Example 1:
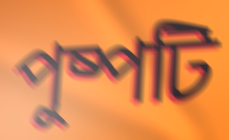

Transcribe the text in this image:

পুষ্পটি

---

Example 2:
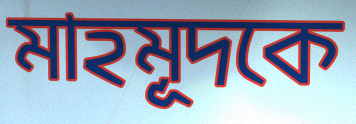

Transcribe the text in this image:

মাহমূদকে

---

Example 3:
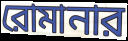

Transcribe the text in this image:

রোমানার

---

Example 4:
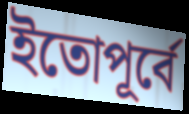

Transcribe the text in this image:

ইতোপূর্বে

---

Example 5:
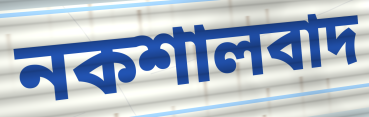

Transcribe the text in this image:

নকশালবাদ